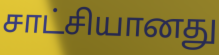
சாட்சியானது